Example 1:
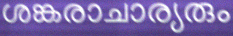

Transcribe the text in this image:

ശങ്കരാചാര്യരും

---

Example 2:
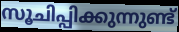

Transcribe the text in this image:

സൂചിപ്പിക്കുന്നുണ്ട്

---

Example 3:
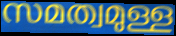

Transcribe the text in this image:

സമത്വമുള്ള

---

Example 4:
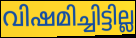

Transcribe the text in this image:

വിഷമിച്ചിട്ടില്ല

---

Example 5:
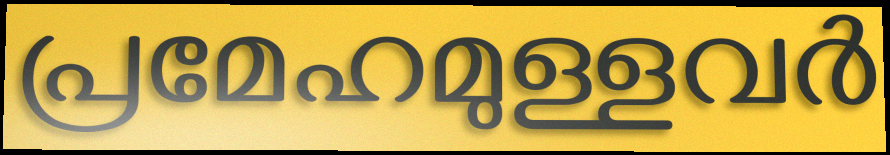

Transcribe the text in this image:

പ്രമേഹമുള്ളവർ